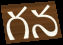
గన